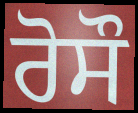
ਰੋਸੌ